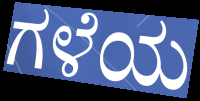
ಗಳೆಯ